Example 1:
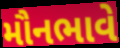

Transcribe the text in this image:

મૌનભાવે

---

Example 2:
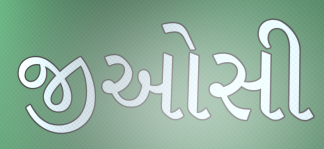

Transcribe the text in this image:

જીઓસી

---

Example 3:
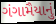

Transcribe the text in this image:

ગંગામૈયાનું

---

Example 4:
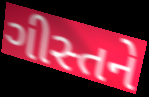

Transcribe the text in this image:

ગીસ્તને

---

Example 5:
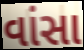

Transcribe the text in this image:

વાંસા